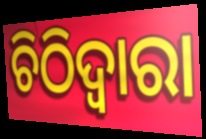
ଚିଠିଦ୍ୱାରା